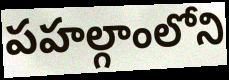
పహల్గాంలోని